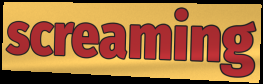
screaming